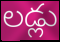
లడ్లు